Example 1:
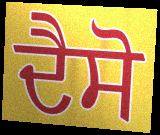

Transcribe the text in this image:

ਦੈਸੋ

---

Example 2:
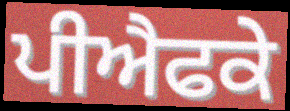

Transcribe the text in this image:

ਪੀਐਫਕੇ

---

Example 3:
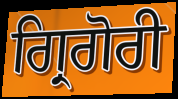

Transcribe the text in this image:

ਗ੍ਰਿਗੋਰੀ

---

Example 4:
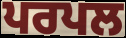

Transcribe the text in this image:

ਪਰਪਲ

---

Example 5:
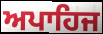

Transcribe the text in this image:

ਅਪਾਹਿਜ